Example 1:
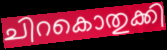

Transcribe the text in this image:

ചിറകൊതുക്കി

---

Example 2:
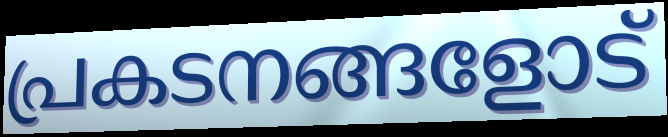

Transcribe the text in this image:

പ്രകടനങ്ങളോട്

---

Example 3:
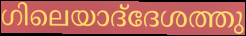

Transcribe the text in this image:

ഗിലെയാദ്‌ദേശത്തു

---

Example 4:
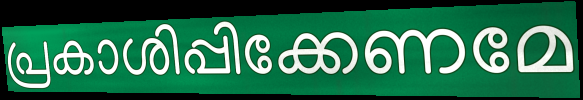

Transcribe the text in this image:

പ്രകാശിപ്പിക്കേണമേ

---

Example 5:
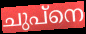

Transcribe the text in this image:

ചുപ്നെ